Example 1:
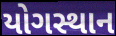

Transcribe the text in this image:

યોગસ્થાન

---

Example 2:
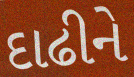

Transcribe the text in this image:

દાઢીને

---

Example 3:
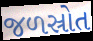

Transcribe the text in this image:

જળસ્રોત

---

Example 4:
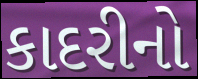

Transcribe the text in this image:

કાદરીનો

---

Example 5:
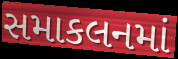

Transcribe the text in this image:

સમાકલનમાં